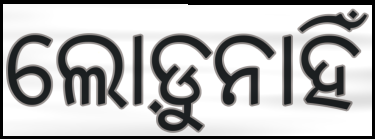
ଲୋଡ଼ୁନାହିଁ